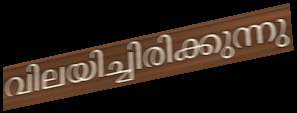
വിലയിച്ചിരിക്കുന്നു